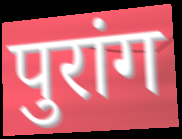
पुरांग